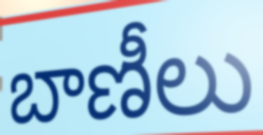
బాణీలు